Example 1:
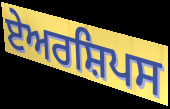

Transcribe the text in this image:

ਏਅਰਸ਼ਿਪਸ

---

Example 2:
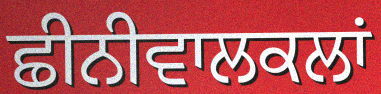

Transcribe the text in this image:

ਛੀਨੀਵਾਲਕਲਾਂ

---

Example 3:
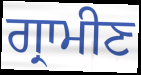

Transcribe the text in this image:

ਗ੍ਰਾਮੀਣ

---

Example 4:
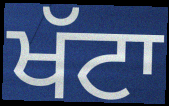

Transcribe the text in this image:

ਖੱਟਾ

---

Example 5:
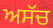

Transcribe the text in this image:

ਅਸੱਚ